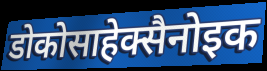
डोकोसाहेक्सैनोइक